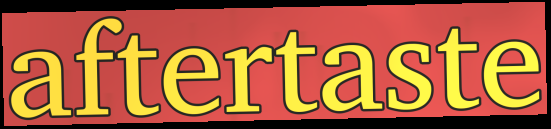
aftertaste